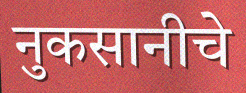
नुकसानीचे